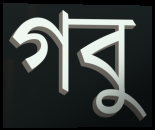
গবু